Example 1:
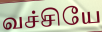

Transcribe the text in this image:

வச்சியே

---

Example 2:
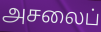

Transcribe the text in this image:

அசலைப்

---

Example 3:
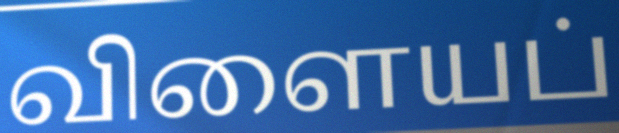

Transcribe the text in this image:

விளையப்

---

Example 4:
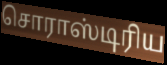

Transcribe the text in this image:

சொராஸ்டிரிய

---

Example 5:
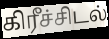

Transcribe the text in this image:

கிரீச்சிடல்